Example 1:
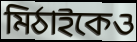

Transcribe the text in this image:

মিঠাইকেও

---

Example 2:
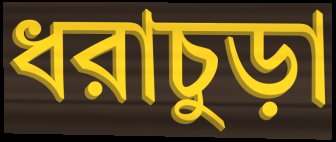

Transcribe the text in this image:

ধরাচুড়া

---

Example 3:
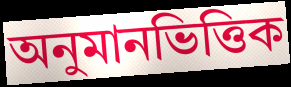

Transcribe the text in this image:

অনুমানভিত্তিক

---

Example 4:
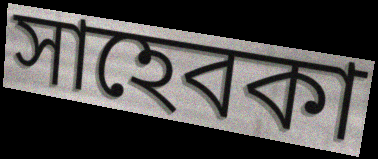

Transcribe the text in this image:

সাহেবকা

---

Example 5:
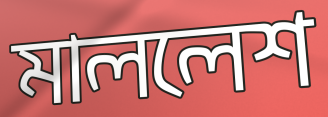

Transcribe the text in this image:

মাললেশ